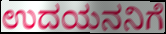
ಉದಯನನಿಗೆ